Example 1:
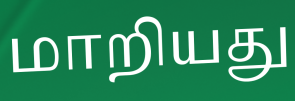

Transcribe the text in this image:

மாறியது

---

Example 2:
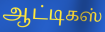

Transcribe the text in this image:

ஆட்டிகஸ்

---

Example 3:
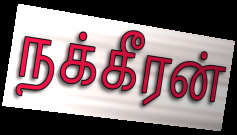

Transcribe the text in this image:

நக்கீரன்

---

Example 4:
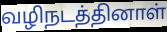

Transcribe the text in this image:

வழிநடத்தினாள்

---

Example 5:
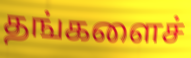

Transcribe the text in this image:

தங்களைச்